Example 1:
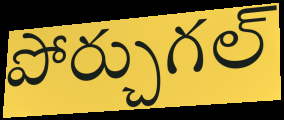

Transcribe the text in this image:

పోర్చుగల్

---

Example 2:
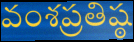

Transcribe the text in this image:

వంశప్రతిష్ఠ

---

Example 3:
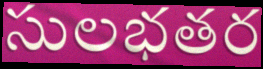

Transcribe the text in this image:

సులభతర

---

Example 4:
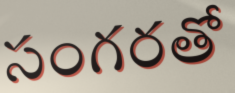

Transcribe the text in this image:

సంగరతో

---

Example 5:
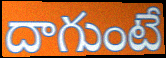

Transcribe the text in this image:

దాగుంటే